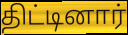
திட்டினார்